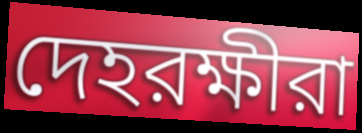
দেহরক্ষীরা